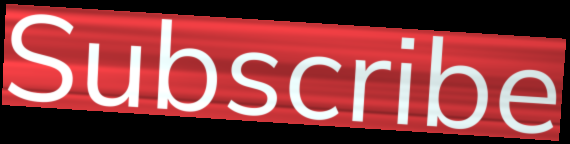
Subscribe